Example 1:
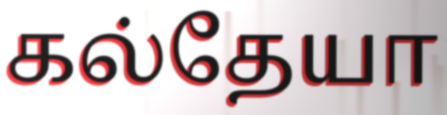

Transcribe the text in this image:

கல்தேயா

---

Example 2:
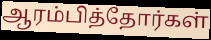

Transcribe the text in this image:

ஆரம்பித்தோர்கள்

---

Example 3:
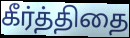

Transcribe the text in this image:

கீர்த்திதை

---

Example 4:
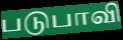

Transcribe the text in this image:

படுபாவி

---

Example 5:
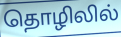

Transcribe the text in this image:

தொழிலில்